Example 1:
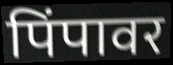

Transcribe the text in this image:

पिंपावर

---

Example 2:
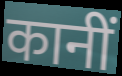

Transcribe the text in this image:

कानीं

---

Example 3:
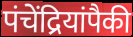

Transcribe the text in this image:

पंचेंद्रियांपैकी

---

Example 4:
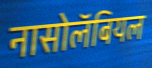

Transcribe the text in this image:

नासोलॅबियल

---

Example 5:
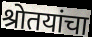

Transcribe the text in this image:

श्रोतयांचा